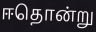
ஈதொன்று